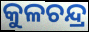
କୁଳଚନ୍ଦ୍ର